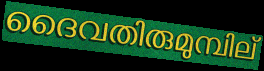
ദൈവതിരുമുമ്പില്